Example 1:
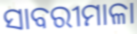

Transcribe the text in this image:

ସାବରୀମାଳା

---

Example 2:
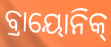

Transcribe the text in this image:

ବ୍ରାୟୋନିକ୍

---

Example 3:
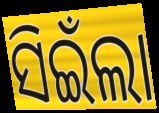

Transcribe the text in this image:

ସିଇଁଲା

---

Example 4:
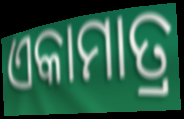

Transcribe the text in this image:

ଏକାମାତ୍ର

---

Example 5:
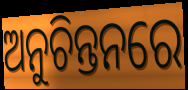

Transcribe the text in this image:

ଅନୁଚିନ୍ତନରେ